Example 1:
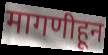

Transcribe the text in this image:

मागणीहून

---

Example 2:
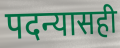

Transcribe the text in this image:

पदन्यासही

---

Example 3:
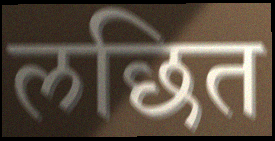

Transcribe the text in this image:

लछित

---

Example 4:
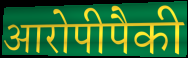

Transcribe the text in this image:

आरोपीपैकी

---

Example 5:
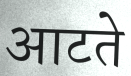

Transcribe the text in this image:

आटते